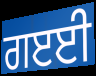
ਗੲਈ